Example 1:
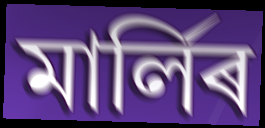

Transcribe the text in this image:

মাৰ্লিৰ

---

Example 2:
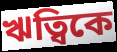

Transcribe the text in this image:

ঋত্বিকে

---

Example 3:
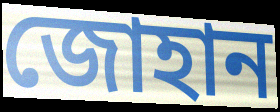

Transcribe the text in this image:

জোহান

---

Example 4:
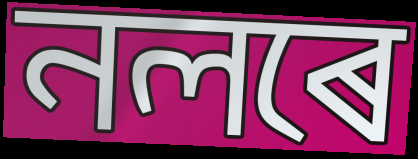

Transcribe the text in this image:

নলৰে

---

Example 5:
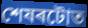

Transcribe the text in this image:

শেষৰটোত